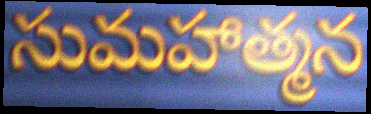
సుమహాత్మన